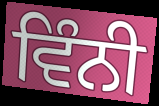
ਵਿੰਨੀ